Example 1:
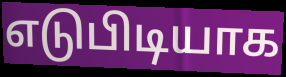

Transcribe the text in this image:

எடுபிடியாக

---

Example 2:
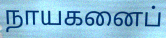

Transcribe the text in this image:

நாயகனைப்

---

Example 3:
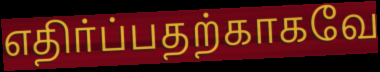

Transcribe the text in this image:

எதிர்ப்பதற்காகவே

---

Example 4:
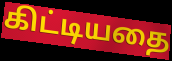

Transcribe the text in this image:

கிட்டியதை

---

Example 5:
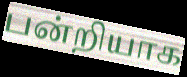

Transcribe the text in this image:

பன்றியாக